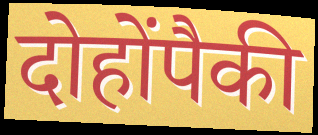
दोहोंपैकी